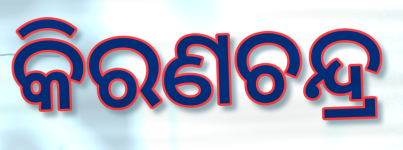
କିରଣଚନ୍ଦ୍ର